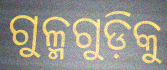
ଗୁଳ୍ମଗୁଡ଼ିକୁ